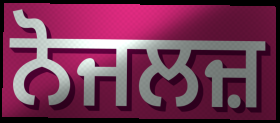
ਨੋਜਲਜ਼